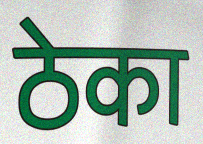
ठेका